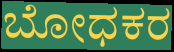
ಬೋಧಕರ